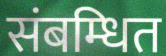
संबम्धित